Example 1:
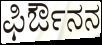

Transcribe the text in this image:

ಫಿರ್ಔನನ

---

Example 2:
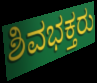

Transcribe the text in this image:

ಶಿವಭಕ್ತರು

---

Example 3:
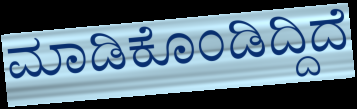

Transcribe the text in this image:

ಮಾಡಿಕೊಂಡಿದ್ದಿದೆ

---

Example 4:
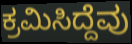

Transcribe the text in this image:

ಕ್ರಮಿಸಿದ್ದೆವು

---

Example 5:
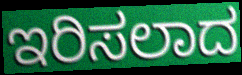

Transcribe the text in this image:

ಇರಿಸಲಾದ